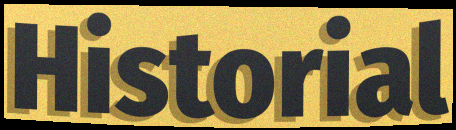
Historial